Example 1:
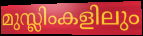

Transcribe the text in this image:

മുസ്ലിംകളിലും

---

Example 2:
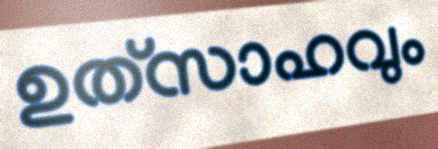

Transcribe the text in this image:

ഉത്‌സാഹവും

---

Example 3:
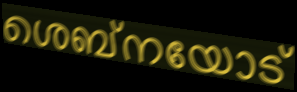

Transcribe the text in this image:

ശെബ്നയോട്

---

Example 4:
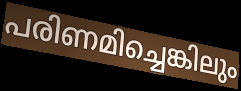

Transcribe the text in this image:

പരിണമിച്ചെങ്കിലും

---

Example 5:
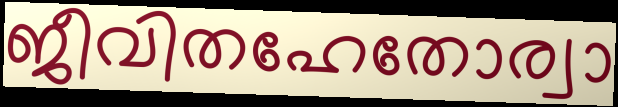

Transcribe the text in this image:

ജീവിതഹേതോര്വാ